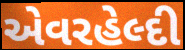
એવરહેલ્દી